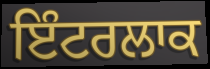
ਇੰਟਰਲਾਕ